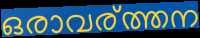
ഒരാവര്ത്തന